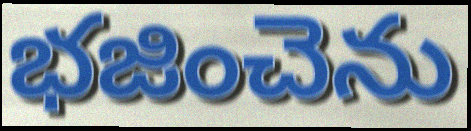
భజించెను